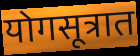
योगसूत्रात